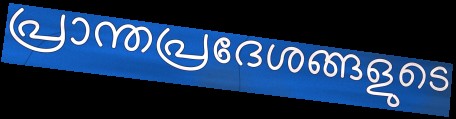
പ്രാന്തപ്രദേശങ്ങളുടെ